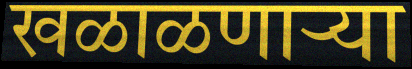
खळाळणाऱ्या